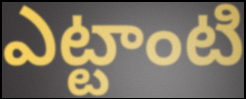
ఎట్టాంటి